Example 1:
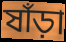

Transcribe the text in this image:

ষাঁড়া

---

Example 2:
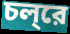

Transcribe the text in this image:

চল্‌রে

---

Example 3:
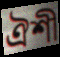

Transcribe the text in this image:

ঐশী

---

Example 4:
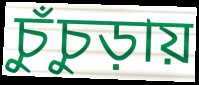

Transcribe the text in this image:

চুঁচুড়ায়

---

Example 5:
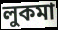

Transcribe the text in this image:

লুকমা